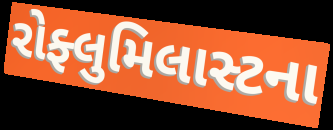
રોફ્લુમિલાસ્ટના